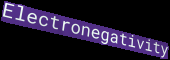
Electronegativity